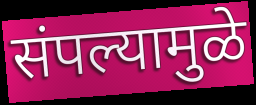
संपल्यामुळे